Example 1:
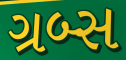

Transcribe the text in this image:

ગ્રબ્સ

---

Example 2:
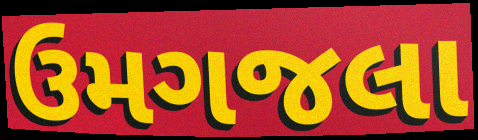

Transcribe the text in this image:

ઉમગજલા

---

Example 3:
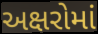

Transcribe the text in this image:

અક્ષરોમાં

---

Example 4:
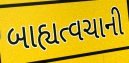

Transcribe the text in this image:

બાહ્યત્વચાની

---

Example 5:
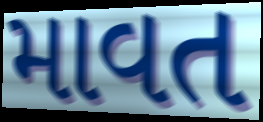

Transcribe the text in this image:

માવત